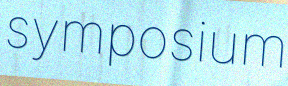
symposium